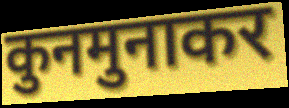
कुनमुनाकर